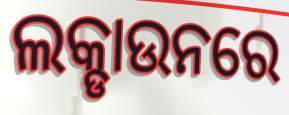
ଲକ୍ଡାଉନରେ